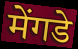
मेंगडे